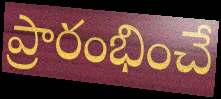
ప్రారంభించే